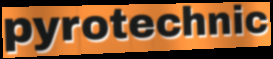
pyrotechnic